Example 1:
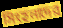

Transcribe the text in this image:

সিংহনাদের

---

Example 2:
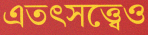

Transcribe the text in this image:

এতৎসত্ত্বেও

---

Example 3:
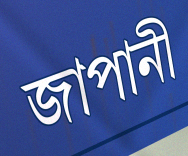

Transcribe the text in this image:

জাপানী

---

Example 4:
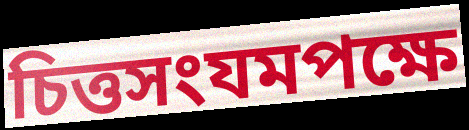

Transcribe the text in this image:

চিত্তসংযমপক্ষে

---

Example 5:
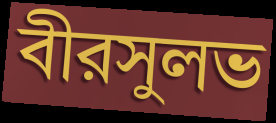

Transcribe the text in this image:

বীরসুলভ